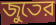
জুতের